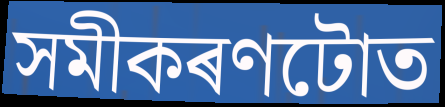
সমীকৰণটোত